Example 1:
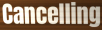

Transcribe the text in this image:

Cancelling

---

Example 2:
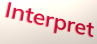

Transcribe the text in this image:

Interpret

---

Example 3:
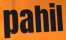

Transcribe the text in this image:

pahil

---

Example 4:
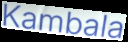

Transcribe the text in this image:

Kambala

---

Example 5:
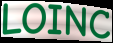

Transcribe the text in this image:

LOINC